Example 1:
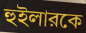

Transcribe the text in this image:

হুইলারকে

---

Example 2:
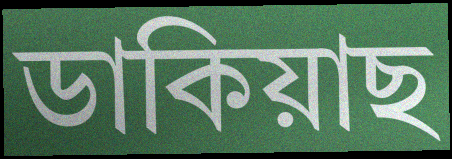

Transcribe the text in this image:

ডাকিয়াছ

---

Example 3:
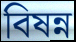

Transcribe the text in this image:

বিষন্ন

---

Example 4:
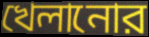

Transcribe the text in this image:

খেলানোর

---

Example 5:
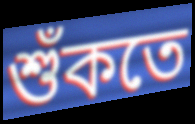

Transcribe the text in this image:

শুঁকতে